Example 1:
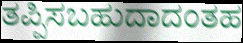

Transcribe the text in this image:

ತಪ್ಪಿಸಬಹುದಾದಂತಹ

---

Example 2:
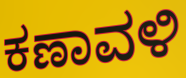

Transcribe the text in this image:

ಕಣಾವಳಿ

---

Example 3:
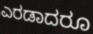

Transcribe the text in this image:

ಎರಡಾದರೂ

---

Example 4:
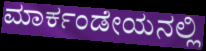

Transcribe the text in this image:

ಮಾರ್ಕಂಡೇಯನಲ್ಲಿ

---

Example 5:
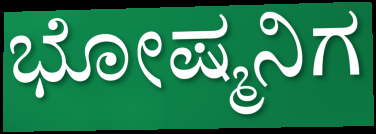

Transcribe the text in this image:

ಭೋಷ್ಮನಿಗ